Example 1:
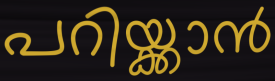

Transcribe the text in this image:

പറിയ്ക്കാൻ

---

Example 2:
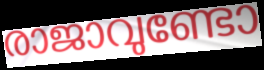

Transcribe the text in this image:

രാജാവുണ്ടോ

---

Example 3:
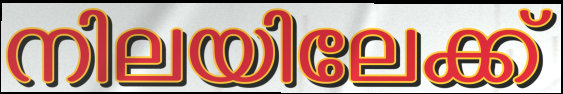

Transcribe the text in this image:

നിലയിലേക്ക്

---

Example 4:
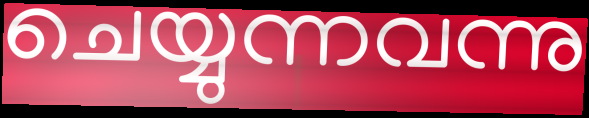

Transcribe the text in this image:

ചെയ്യുന്നവന്നു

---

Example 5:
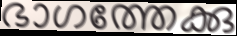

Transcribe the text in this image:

ഭാഗത്തേക്കു